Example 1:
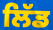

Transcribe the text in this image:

ਲਿੱਡ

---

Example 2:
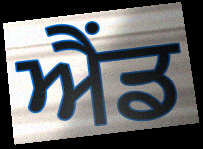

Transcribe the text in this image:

ਐੰਡ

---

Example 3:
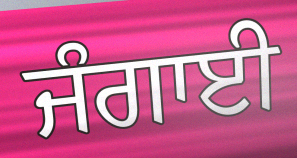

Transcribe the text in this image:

ਜੰਗਾਈ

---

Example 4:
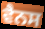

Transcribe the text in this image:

ਵੈਨਸ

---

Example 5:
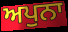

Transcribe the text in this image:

ਅਪੁਨਾ